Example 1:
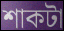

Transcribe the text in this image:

শাকটা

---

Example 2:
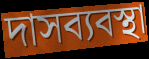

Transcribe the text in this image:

দাসব্যবস্থা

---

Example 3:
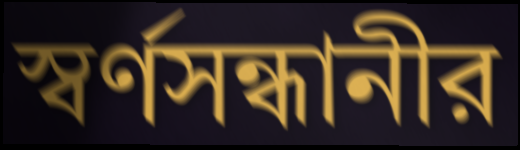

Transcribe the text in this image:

স্বর্ণসন্ধানীর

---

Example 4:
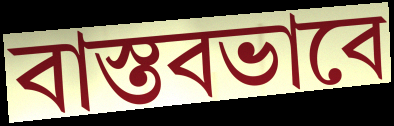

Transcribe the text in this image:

বাস্তবভাবে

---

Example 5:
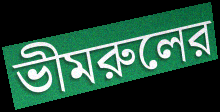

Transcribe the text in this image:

ভীমরুলের